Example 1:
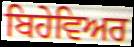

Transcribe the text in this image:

ਬਿਹੇਵਿਅਰ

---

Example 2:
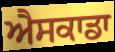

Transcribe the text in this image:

ਐਸਕਾਡਾ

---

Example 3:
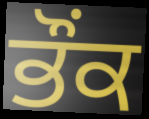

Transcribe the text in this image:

ਭੌਂਕ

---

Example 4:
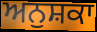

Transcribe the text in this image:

ਅਨੁਸ਼ਕਾ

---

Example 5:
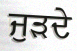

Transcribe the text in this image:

ਜੁੜਦੇ